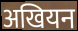
अखियन